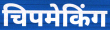
चिपमेकिंग